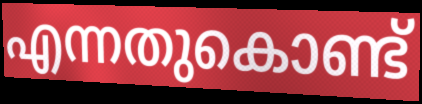
എന്നതുകൊണ്ട്